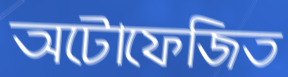
অটোফেজিত